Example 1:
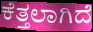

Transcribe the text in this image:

ಕೆತ್ತಲಾಗಿದೆ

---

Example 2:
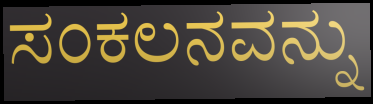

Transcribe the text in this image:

ಸಂಕಲನವನ್ನು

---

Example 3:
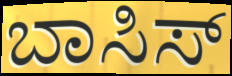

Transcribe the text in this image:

ಬಾಸಿಸ್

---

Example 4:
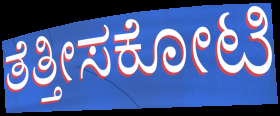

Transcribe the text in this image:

ತೆತ್ತೀಸಕೋಟಿ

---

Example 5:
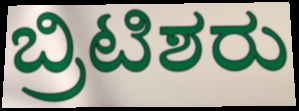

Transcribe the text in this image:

ಬ್ರಿಟಿಶರು